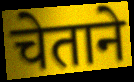
चेताने